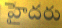
హైదరు